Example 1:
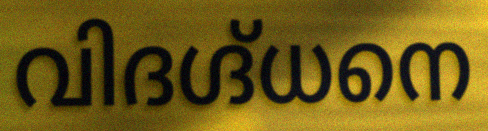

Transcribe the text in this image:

വിദഗ്ദ്ധനെ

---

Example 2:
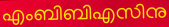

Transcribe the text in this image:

എംബിബിഎസിനു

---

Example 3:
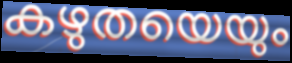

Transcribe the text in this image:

കഴുതയെയും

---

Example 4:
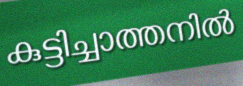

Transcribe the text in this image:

കുട്ടിച്ചാത്തനിൽ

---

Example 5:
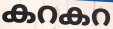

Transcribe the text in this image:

കറകറ